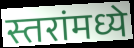
स्तरांमध्ये